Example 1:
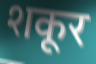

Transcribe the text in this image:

शकूर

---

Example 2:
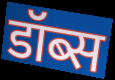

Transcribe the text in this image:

डॉब्स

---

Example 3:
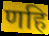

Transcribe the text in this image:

णहि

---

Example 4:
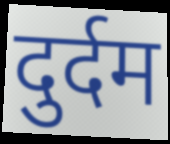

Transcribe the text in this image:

दुर्दम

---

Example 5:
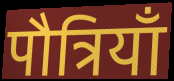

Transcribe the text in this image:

पौत्रियाँ